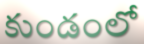
కుండంలో